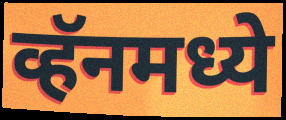
व्हॅनमध्ये